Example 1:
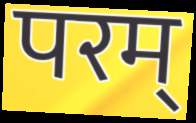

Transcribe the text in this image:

परम्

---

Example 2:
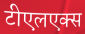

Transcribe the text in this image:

टीएलएक्स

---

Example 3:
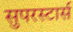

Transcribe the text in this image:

सुपरस्‍टार्स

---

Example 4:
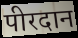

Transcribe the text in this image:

पीरदान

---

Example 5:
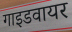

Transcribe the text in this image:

गाइडवायर